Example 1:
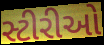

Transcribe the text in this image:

સ્ટીરીઓ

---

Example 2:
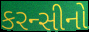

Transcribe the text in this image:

કરન્સીનો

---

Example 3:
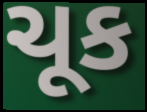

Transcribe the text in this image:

ચૂક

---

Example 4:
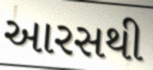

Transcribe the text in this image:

આરસથી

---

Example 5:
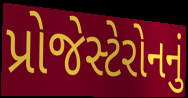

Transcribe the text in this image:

પ્રોજેસ્ટેરોનનું